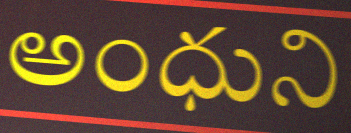
అంధుని